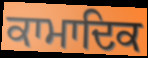
ਕਾਮਾਦਿਕ